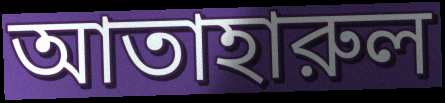
আতাহারুল